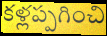
కళ్లప్పగించి